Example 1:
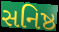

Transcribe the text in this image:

સનિષ્ઠ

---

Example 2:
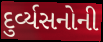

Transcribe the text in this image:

દુર્વ્યસનોની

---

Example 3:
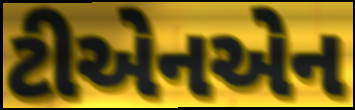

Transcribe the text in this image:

ટીએનએન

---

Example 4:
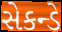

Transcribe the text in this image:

સેકન્ડે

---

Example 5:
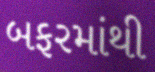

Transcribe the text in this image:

બફરમાંથી